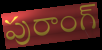
పురాంగ్